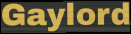
Gaylord